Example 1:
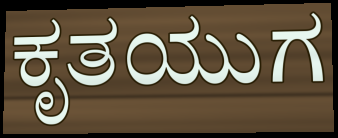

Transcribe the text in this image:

ಕೃತಯುಗ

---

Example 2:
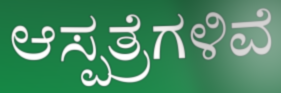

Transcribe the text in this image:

ಆಸ್ಪತ್ರೆಗಳಿವೆ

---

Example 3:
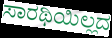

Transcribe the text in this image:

ಸಾರಥಿಯಿಲ್ಲದ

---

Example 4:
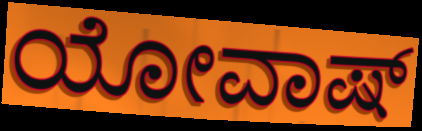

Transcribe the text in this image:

ಯೋವಾಷ್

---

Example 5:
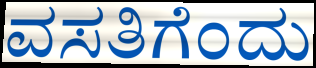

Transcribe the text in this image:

ವಸತಿಗೆಂದು